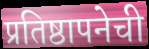
प्रतिष्ठापनेची